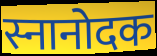
स्नानोदक